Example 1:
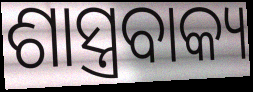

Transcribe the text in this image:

ଶାସ୍ତ୍ରବାକ୍ୟ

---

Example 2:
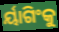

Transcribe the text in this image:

ର୍ୟାଗିଂକୁ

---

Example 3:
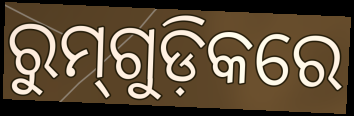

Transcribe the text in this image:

ରୁମ୍‌ଗୁଡ଼ିକରେ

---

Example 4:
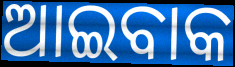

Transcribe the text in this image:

ଆଇବାକ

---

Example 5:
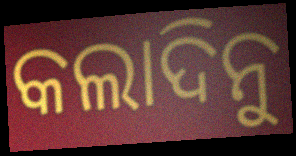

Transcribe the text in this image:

କଲାଦିନୁ